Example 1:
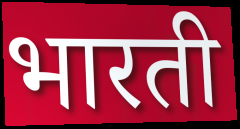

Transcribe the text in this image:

भारती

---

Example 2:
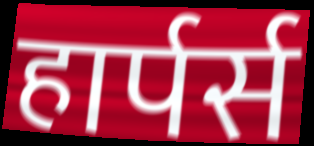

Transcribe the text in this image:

हार्पर्स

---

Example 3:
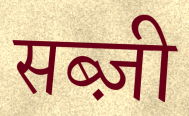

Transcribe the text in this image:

सब्ज़ी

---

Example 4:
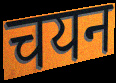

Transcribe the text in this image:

चयन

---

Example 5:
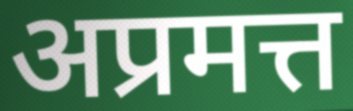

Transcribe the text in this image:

अप्रमत्त